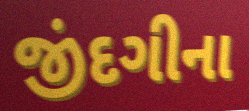
જીંદગીના